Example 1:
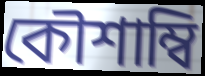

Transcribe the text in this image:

কৌশাম্বি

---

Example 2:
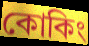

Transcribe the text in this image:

কোকিং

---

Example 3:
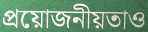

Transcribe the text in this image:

প্রয়োজনীয়তাও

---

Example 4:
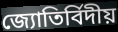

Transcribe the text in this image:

জ্যোতির্বিদীয়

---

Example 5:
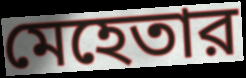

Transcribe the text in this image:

মেহেতার